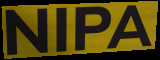
NIPA